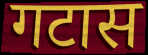
गटास